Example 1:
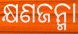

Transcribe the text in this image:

କ୍ଷଣଜନ୍ମା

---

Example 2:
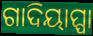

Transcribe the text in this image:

ଗାଦିୟାପ୍ପା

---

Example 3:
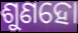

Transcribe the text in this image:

ଶୁଣହୋ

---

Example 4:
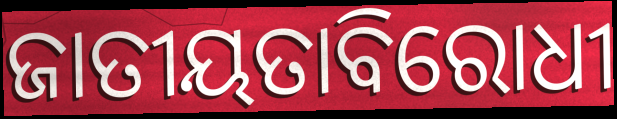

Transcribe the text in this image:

ଜାତୀୟତାବିରୋଧୀ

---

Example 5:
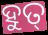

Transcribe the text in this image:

ହୁତ୍